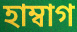
হাম্বাগ